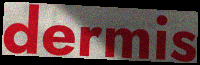
dermis